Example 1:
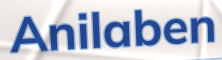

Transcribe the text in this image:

Anilaben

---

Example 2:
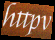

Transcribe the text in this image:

httpv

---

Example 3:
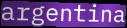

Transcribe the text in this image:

argentina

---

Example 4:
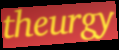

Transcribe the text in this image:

theurgy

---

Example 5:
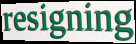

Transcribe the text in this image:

resigning